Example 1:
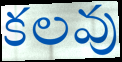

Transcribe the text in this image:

కలవు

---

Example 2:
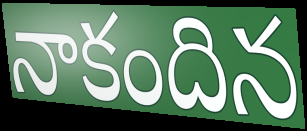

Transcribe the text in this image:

నాకందిన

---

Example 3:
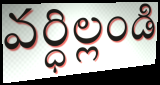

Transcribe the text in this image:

వర్ధిల్లండి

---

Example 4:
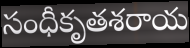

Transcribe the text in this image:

సంధీకృతశరాయ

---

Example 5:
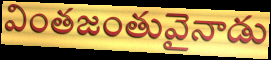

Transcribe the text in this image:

వింతజంతువైనాడు